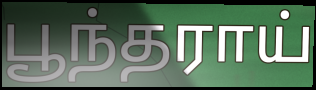
பூந்தராய்